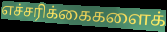
எச்சரிக்கைகளைக்